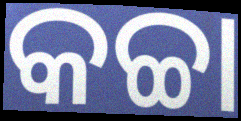
କଚ୍ଚା